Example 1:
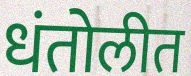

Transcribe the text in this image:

धंतोलीत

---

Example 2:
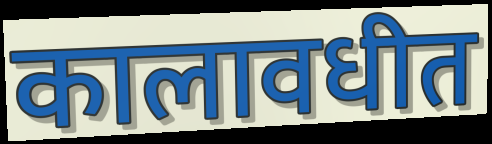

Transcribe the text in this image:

कालावधीत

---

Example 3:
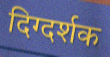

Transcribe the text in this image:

दिग्दर्शक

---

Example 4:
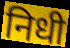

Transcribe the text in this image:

निधी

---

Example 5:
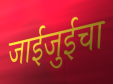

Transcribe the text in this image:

जाईजुईचा